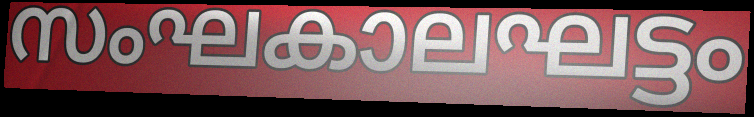
സംഘകാലഘട്ടം